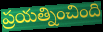
ప్రయత్నించింది